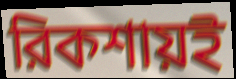
রিকশায়ই